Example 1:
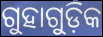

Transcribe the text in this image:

ଗୁହାଗୁଡ଼ିକ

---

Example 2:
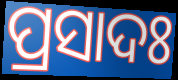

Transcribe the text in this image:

ପ୍ରସାଦଃ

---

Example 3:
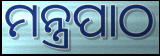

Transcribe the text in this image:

ମନ୍ତ୍ରପାଠ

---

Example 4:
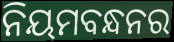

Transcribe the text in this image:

ନିୟମବନ୍ଧନର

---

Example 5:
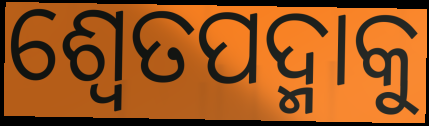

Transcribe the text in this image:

ଶ୍ୱେତପଦ୍ମାକୁ